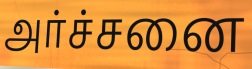
அர்ச்சனை